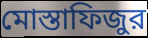
মোস্তাফিজুর